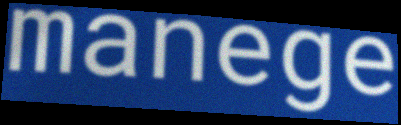
manege